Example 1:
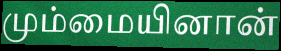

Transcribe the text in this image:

மும்மையினான்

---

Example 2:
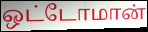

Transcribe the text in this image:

ஒட்டோமான்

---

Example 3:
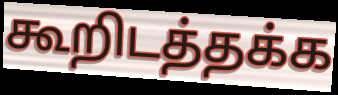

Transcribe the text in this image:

கூறிடத்தக்க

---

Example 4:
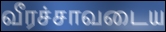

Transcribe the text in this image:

வீரச்சாவடைய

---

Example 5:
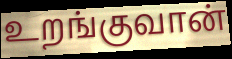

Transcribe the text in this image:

உறங்குவான்